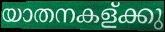
യാതനകള്ക്കു